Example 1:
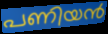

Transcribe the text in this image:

പണിയൻ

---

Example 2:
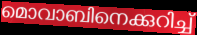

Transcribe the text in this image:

മൊവാബിനെക്കുറിച്ച്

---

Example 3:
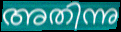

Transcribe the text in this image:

അതിന്നു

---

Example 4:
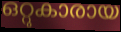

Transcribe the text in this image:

ഒറ്റുകാരായ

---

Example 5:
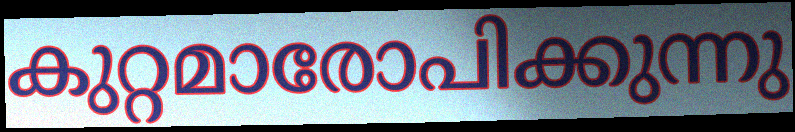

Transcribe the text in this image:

കുറ്റമാരോപിക്കുന്നു